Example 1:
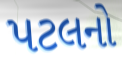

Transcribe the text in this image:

પટલનો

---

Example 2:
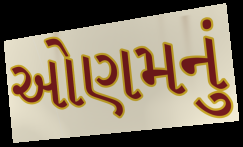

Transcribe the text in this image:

ઓણમનું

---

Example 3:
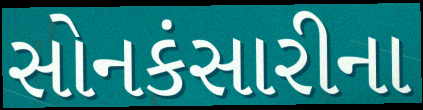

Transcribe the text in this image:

સોનકંસારીના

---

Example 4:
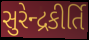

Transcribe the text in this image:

સુરેન્દ્રકીર્તિ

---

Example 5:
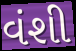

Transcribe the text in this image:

વંશી